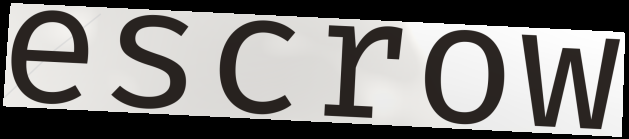
escrow